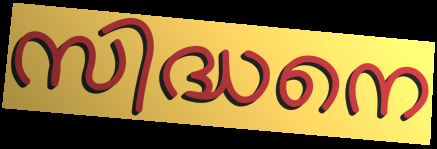
സിദ്ധനെ